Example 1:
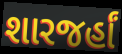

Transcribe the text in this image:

શારજર્હાં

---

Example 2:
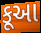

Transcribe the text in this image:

કૂઆ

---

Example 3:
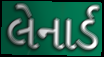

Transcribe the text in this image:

લેનાર્ડ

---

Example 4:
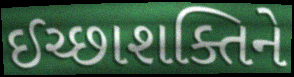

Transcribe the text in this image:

ઈચ્છાશક્તિને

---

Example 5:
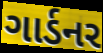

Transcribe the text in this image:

ગાર્ડનર